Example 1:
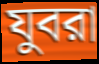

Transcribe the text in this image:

যুবরা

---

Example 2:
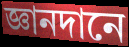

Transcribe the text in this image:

জ্ঞানদানে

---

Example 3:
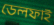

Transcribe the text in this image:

ডেলফাই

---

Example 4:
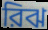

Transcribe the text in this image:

রিঝ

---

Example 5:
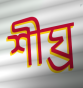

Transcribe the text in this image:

শীঘ্র